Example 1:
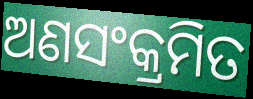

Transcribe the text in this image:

ଅଣସଂକ୍ରମିତ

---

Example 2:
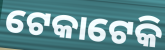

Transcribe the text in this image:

ଟେକାଟେକି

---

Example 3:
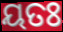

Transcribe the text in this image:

ୟତଃ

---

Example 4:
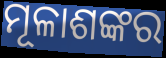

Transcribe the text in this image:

ମୂଳାଶଙ୍କର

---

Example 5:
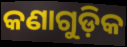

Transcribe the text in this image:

କଣାଗୁଡ଼ିକ